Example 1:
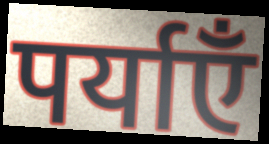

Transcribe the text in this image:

पर्याएँ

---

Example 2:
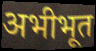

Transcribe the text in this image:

अभीभूत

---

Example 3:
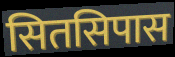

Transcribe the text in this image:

सितसिपास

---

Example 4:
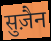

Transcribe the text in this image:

सुज़ैन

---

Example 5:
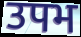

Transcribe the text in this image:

उपभ